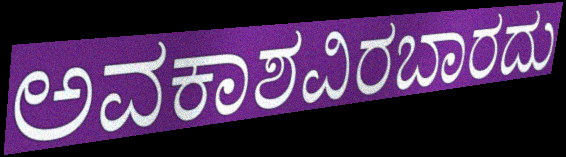
ಅವಕಾಶವಿರಬಾರದು